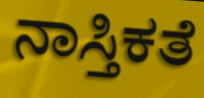
ನಾಸ್ತಿಕತೆ